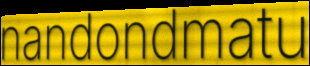
nandondmatu